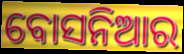
ବୋସନିଆର